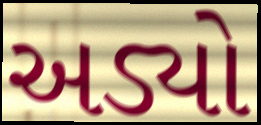
અડ્યો